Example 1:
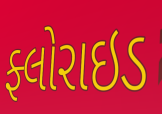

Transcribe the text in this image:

ફ્લોરાઇડ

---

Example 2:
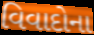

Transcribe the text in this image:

વિવાદોના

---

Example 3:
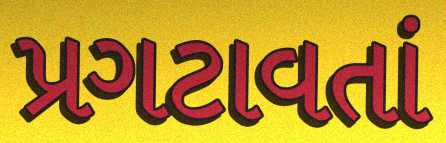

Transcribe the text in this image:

પ્રગટાવતાં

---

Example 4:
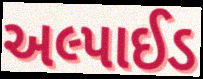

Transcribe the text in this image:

અલ્પાઈડ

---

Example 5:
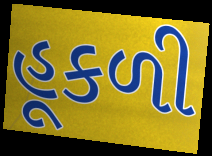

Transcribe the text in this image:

હૂકળી